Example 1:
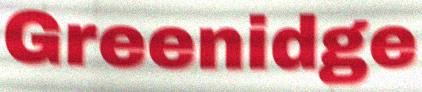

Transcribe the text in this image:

Greenidge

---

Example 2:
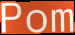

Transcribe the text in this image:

Pom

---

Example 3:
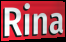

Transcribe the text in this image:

Rina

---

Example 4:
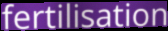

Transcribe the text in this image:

fertilisation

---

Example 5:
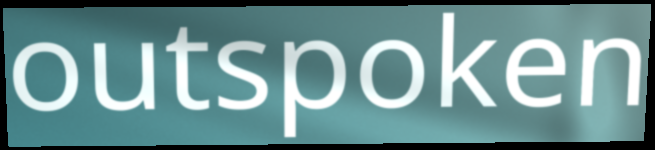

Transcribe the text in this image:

outspoken